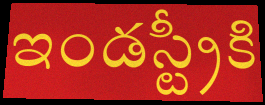
ఇండస్ట్రీకి